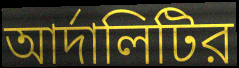
আর্দালিটির